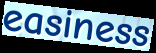
easiness